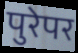
पुरेपर